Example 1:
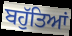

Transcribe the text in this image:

ਬਹੁੱਤਿਆਂ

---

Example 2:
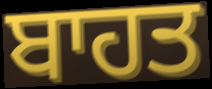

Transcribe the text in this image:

ਬਾਹਤ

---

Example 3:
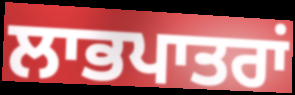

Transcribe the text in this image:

ਲਾਭਪਾਤਰਾਂ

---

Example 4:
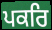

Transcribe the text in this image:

ਪਕਰਿ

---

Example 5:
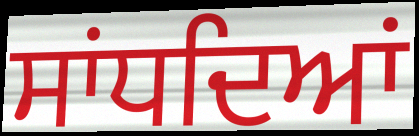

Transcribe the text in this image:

ਸਾਂਧਦਿਆਂ